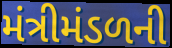
મંત્રીમંડળની